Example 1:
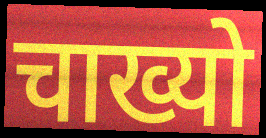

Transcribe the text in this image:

चाख्यो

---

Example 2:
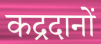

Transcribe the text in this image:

कद्रदानों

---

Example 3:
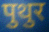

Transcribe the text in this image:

पुथुर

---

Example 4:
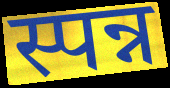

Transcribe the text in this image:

स्पन्न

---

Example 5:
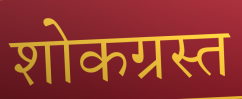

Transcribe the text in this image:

शोकग्रस्त